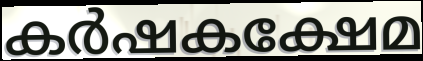
കർഷകക്ഷേമ